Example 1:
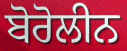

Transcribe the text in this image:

ਬੋਰੋਲੀਨ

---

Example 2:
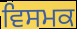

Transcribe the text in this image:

ਵਿਸਮਕ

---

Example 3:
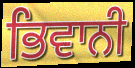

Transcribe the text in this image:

ਭਿਵਾਨੀ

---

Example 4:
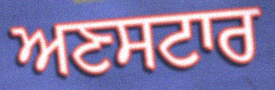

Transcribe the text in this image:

ਅਣਸਟਾਰ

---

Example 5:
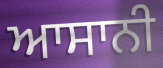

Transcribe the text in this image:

ਆਸਾਨੀ